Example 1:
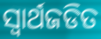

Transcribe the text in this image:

ସ୍ଵାର୍ଥଜଡିତ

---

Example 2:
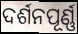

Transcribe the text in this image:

ଦର୍ଶନପୂର୍ଣ୍ଣ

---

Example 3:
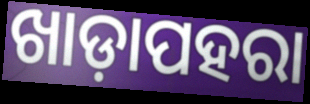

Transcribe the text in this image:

ଖାଡ଼ାପହରା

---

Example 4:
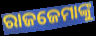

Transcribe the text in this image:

ରାଜଜେମାଙ୍କୁ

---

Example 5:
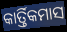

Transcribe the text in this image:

କାର୍ତ୍ତିକମାସ